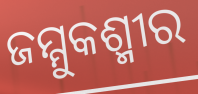
ଜମ୍ମୁକଶ୍ମୀର